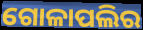
ଗୋଳାପଲିର